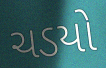
ચડયો